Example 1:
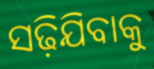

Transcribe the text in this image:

ସଢ଼ିଯିବାକୁ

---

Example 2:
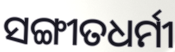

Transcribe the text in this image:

ସଙ୍ଗୀତଧର୍ମୀ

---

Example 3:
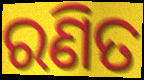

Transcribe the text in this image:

ରଣିତ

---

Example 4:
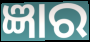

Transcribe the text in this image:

ଜ୍ଞାର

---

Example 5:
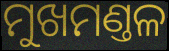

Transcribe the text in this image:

ମୁଖମଣ୍ତଳ